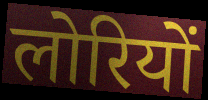
लोरियों